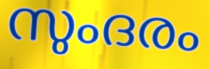
സുംദരം